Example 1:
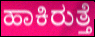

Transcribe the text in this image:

ಹಾಕಿರುತ್ತೆ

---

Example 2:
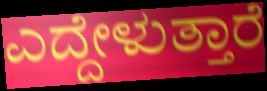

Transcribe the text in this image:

ಎದ್ದೇಳುತ್ತಾರೆ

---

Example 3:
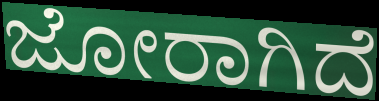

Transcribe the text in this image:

ಜೋರಾಗಿದೆ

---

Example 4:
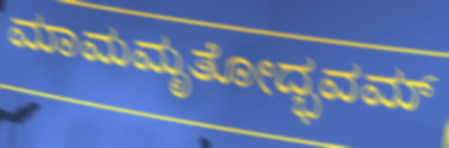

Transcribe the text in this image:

ಮಾಮಮೃತೋದ್ಭವಮ್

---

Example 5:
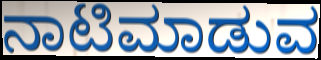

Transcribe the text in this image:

ನಾಟಿಮಾಡುವ